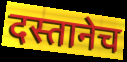
दस्तानेच